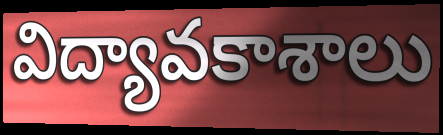
విద్యావకాశాలు